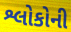
શ્લોકોની